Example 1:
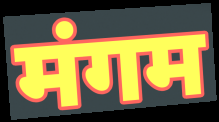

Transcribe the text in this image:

मंगम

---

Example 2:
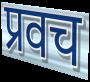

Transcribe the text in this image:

प्रवच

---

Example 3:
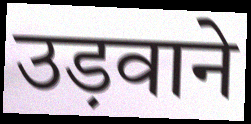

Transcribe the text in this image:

उड़वाने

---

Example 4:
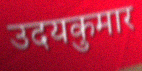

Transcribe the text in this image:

उदयकुमार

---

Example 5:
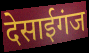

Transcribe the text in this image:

देसाईगंज